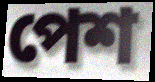
পেশ